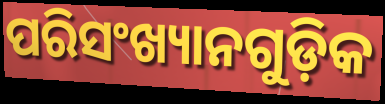
ପରିସଂଖ୍ୟାନଗୁଡ଼ିକ